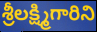
శ్రీలక్ష్మిగారిని